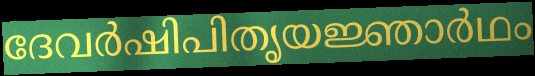
ദേവർഷിപിതൃയജ്ഞാർഥം